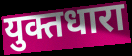
युक्तधारा